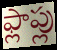
ఫ్లాప్లు